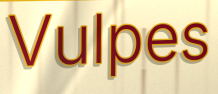
Vulpes